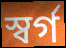
স্বৰ্গ